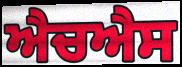
ਐਚਐਸ